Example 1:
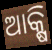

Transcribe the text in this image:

ଆକ୍ଷି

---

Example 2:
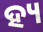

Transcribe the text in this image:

ହ୍ୟ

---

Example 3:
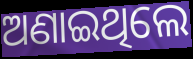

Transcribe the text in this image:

ଅଣାଇଥିଲେ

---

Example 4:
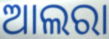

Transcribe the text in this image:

ଆଲରା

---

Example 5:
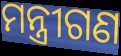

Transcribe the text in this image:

ମନ୍ତ୍ରୀଗଣ